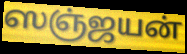
ஸஞ்ஜயன்